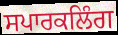
ਸਪਾਰਕਲਿੰਗ